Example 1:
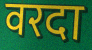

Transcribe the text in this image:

वरदा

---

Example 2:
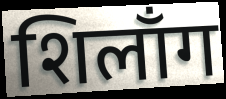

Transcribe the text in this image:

शिलाँग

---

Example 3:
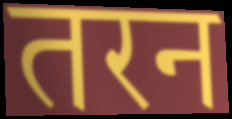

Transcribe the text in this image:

तरन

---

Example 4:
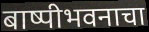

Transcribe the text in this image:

बाष्पीभवनाचा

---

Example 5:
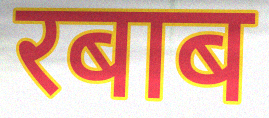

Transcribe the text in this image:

रबाब